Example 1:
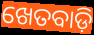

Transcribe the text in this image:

ଖେତବାଡ଼ି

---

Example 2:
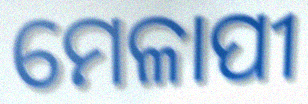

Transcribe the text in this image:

ମେଳାପୀ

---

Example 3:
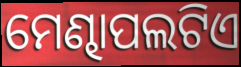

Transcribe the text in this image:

ମେଣ୍ଢାପଲଟିଏ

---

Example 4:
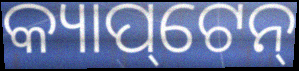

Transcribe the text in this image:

କ୍ୟାପ୍‌ଟେନ୍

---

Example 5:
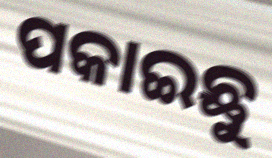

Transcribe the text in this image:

ପକାଇଛୁ